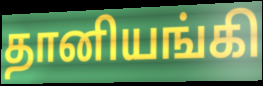
தானியங்கி